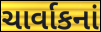
ચાર્વાકનાં